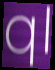
ql